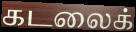
கடலைக்